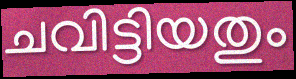
ചവിട്ടിയതും